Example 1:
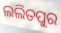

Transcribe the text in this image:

ଲଲିତପୁର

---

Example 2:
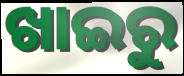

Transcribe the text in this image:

ଖାଇରୁ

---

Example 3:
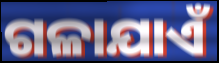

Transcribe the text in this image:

ଗଳାଯାଏଁ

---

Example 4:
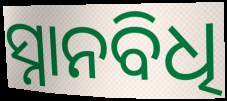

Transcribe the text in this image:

ସ୍ନାନବିଧି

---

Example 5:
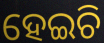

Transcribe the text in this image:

ହେଇଚି